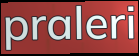
praleri